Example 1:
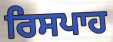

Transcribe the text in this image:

ਰਿਸਪਾਹ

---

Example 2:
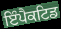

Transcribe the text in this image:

ਇੰਪੈਕਟਿਡ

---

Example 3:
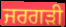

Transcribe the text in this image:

ਜਰਗੜੀ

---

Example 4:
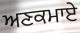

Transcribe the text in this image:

ਅਣਕਮਾਏ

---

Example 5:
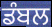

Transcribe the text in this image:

ਡੰਬਲ